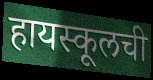
हायस्कूलची